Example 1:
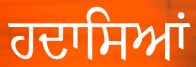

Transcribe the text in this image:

ਹਦਾਸਿਆਂ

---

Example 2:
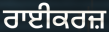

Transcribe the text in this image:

ਰਾਈਕਰਜ਼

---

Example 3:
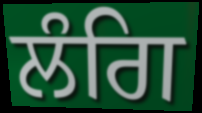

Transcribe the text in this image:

ਲੰਗਿ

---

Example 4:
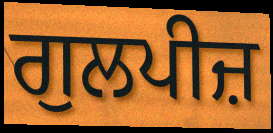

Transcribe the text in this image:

ਗੁਲਪੀਜ਼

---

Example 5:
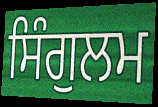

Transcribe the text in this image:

ਸਿੰਗੁਲਮ